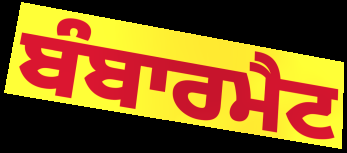
ਬੰਬਾਰਮੈਟ